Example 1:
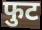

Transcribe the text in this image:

फुट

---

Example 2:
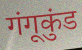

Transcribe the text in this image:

गंगूकुंड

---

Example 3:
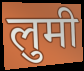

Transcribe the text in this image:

लुमी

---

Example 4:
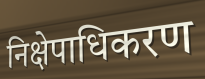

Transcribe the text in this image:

निक्षेपाधिकरण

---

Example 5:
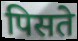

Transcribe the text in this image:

पिसते